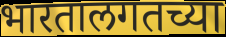
भारतालगतच्या